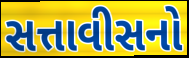
સત્તાવીસનો